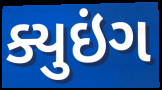
ક્યુઇંગ